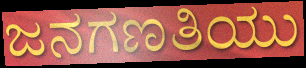
ಜನಗಣತಿಯು